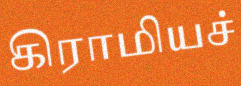
கிராமியச்